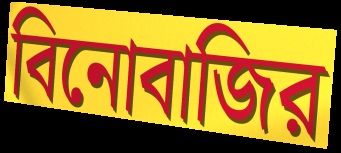
বিনোবাজির